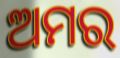
ଅମର